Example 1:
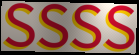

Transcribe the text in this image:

SSSS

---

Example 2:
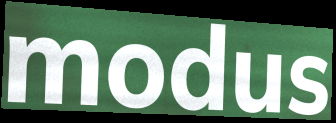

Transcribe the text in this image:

modus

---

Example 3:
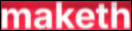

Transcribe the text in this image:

maketh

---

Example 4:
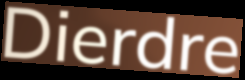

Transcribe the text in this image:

Dierdre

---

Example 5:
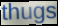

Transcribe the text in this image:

thugs